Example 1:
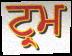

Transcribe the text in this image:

ਟ੍ਰਮ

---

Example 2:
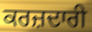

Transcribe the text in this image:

ਕਰਜ਼ਦਾਰੀ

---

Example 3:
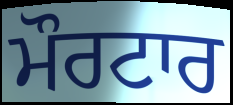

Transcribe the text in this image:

ਮੌਰਟਾਰ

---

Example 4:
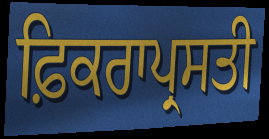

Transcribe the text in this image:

ਫ਼ਿਕਰਾਪ੍ਰਸਤੀ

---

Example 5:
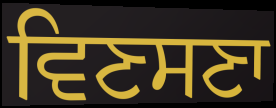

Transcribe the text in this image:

ਵਿਣਸਣਾ